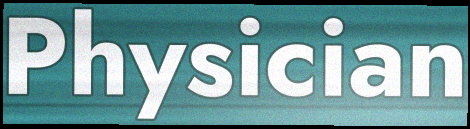
Physician